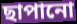
ছাপানো